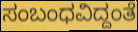
ಸಂಬಂಧವಿದ್ದಂತೆ